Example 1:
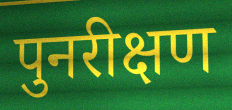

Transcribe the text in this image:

पुनरीक्षण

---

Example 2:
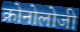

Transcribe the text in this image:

क्रोनोलोजी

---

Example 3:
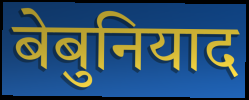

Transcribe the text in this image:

बेबुनियाद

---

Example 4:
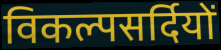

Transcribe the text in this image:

विकल्पसर्दियों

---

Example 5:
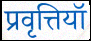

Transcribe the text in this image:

प्रवृत्तियॉ